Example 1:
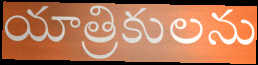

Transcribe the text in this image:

యాత్రికులను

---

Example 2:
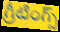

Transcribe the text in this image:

గ్రీటింగ్స్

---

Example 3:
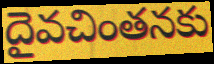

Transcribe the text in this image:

దైవచింతనకు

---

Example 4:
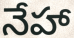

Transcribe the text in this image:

నేహా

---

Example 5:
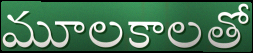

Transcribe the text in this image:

మూలకాలతో